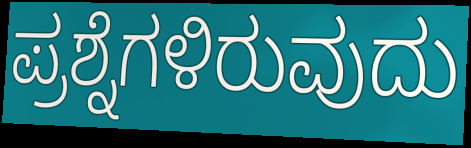
ಪ್ರಶ್ನೆಗಳಿರುವುದು